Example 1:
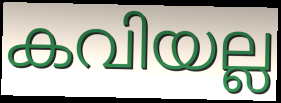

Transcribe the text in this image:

കവിയല്ല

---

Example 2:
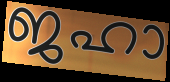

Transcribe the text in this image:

ജഹാ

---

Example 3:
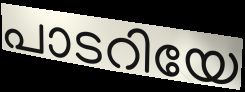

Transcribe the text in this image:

പാടറിയേ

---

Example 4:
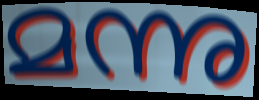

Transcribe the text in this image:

മന്നു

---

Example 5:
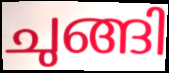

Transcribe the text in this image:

ചുങ്ങി